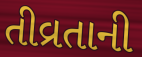
તીવ્રતાની